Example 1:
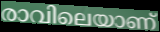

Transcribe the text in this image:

രാവിലെയാണ്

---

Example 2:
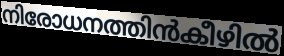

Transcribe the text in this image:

നിരോധനത്തിൻകീഴിൽ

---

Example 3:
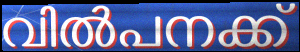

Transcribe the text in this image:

വിൽപനക്ക്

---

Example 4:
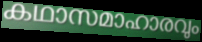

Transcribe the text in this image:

കഥാസമാഹാരവും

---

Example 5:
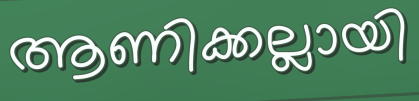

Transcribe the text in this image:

ആണിക്കല്ലായി